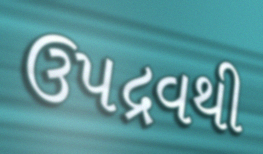
ઉપદ્રવથી